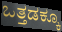
ಒತ್ತಡಕ್ಕೂ